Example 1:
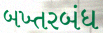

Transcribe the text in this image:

બખ્તરબંધ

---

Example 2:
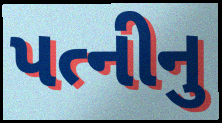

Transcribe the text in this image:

પત્નીનુ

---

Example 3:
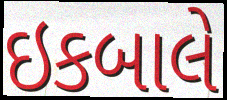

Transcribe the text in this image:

ઇકબાલે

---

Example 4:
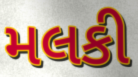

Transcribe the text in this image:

મલકી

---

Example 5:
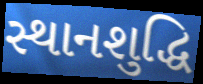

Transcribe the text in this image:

સ્થાનશુદ્ધિ